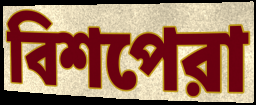
বিশপেরা